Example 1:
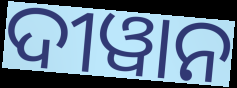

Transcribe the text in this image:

ଦୀୱାନ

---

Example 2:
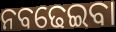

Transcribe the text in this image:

ନବଢେଇବା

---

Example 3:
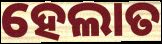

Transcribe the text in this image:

ହେଲାତ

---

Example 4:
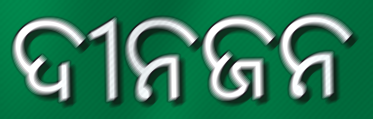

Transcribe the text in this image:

ଦୀନଜନ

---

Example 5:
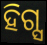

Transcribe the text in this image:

ହିଗ୍ସ